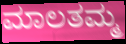
ಮಾಲತಮ್ಮ